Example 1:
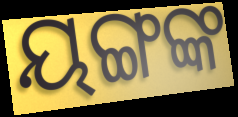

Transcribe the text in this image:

ୟଙ୍ଗଙ୍କ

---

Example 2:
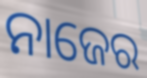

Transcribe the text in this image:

ନାଜେର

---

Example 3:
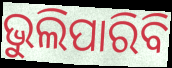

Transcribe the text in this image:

ଭୁଲିପାରିବି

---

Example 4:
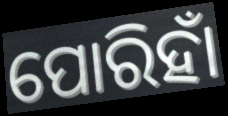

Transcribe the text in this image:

ପୋରିହାଁ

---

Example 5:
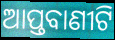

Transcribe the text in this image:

ଆପ୍ତବାଣୀଟି